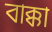
বাক্কা